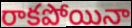
రాకపోయినా